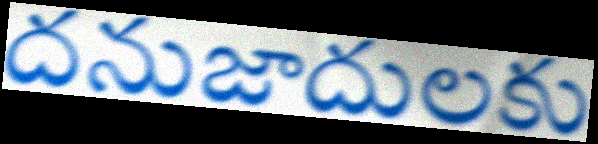
దనుజాదులకు